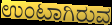
ಉಂಟಾಗಿರುವ